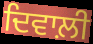
ਦਿਵਾਲ਼ੀ